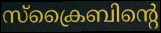
സ്ക്രൈബിന്റെ